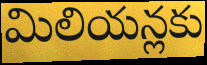
మిలియన్లకు